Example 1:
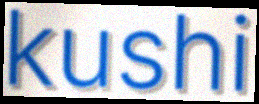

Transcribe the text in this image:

kushi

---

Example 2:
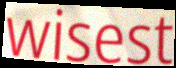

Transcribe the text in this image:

wisest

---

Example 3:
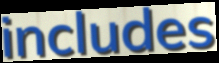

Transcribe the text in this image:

includes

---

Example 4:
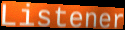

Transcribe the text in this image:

Listener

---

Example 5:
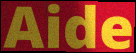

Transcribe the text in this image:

Aide